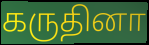
கருதினா